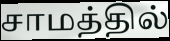
சாமத்தில்